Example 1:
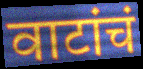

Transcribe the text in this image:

वाटांचं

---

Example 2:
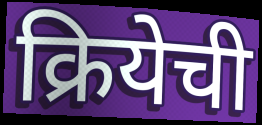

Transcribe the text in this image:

क्रियेची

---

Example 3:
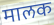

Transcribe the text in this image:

मालक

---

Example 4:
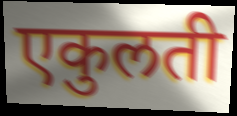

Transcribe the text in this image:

एकुलती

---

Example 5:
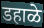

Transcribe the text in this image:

डहाळे